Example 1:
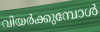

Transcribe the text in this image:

വിയർക്കുമ്പോൾ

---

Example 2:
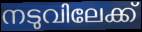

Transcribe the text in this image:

നടുവിലേക്ക്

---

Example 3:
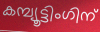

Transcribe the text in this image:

കമ്പ്യൂട്ടിംഗിന്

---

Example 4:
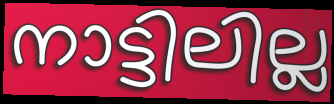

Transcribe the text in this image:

നാട്ടിലില്ല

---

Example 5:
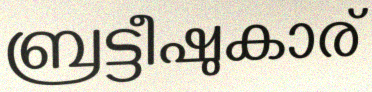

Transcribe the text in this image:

ബ്രട്ടീഷുകാര്